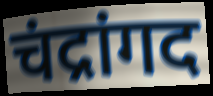
चंद्रांगद